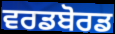
ਵਰਡਬੋਰਡ